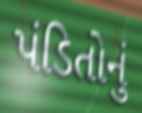
પંડિતોનું